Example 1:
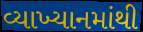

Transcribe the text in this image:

વ્યાખ્યાનમાંથી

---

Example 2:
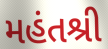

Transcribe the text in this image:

મહંતશ્રી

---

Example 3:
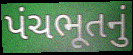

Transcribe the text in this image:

પંચભૂતનું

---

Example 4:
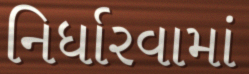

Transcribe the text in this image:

નિર્ધારવામાં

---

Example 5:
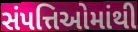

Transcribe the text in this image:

સંપત્તિઓમાંથી